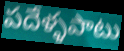
పదేళ్ళపాటు